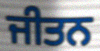
ਜੀਤਨ